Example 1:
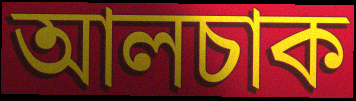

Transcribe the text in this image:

আলচাক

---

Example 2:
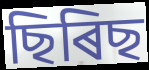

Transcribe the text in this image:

ছিৰিছ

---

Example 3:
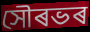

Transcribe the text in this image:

সৌৰভৰ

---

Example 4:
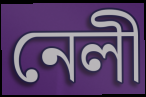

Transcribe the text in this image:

নেলী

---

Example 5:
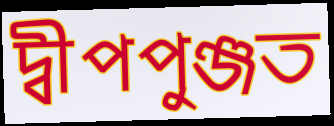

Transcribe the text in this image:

দ্বীপপুঞ্জত